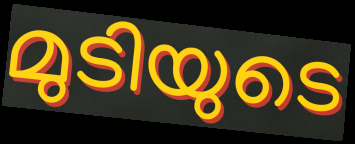
മുടിയുടെ